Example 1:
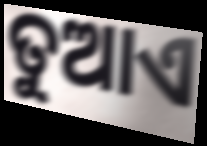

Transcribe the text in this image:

ତୁଆଏ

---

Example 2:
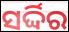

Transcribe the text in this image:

ସର୍ଦ୍ଦିର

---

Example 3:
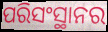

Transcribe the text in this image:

ପରିସଂସ୍ଥାନର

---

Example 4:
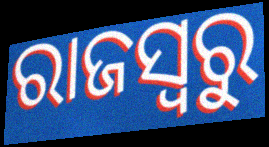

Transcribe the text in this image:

ରାଜସ୍ୱରୁ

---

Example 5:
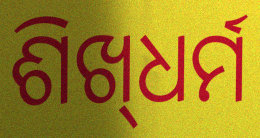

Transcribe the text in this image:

ଶିଖ୍‌ଧର୍ମ